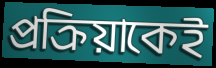
প্রক্রিয়াকেই